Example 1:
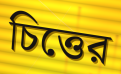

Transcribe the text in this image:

চিত্তের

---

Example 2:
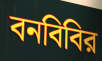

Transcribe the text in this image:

বনবিবির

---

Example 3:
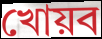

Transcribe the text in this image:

খোয়ব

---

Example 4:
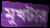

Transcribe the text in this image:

মুখটার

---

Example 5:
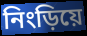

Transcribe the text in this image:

নিংড়িয়ে